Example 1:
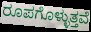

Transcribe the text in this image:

ರೂಪಗೊಳ್ಳುತ್ತವೆ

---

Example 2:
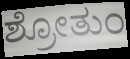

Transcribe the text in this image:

ಶ್ರೋತುಂ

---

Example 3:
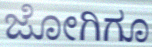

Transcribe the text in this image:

ಜೋಗಿಗೂ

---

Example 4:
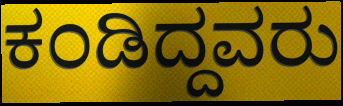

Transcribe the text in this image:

ಕಂಡಿದ್ದವರು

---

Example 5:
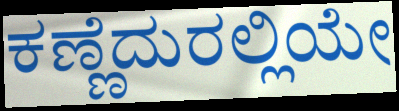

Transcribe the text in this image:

ಕಣ್ಣೆದುರಲ್ಲಿಯೇ